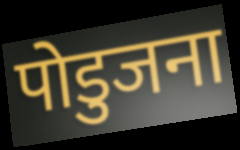
पोडुजना